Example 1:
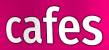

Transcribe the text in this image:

cafes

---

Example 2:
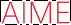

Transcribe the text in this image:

AIME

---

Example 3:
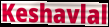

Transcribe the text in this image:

Keshavlal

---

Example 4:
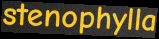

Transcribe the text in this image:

stenophylla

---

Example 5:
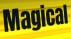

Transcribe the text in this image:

Magical